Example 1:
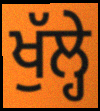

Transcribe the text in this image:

ਖੁੱਲ੍ਹੇ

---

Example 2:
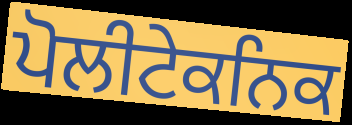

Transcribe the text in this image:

ਪੋਲੀਟੇਕਨਿਕ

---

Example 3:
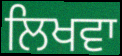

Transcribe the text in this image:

ਲਿਖਵਾ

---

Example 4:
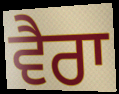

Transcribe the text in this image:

ਵੈਰਾ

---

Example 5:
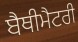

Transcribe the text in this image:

ਬੈਥੀਮੈਟਰੀ